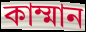
কাম্মান